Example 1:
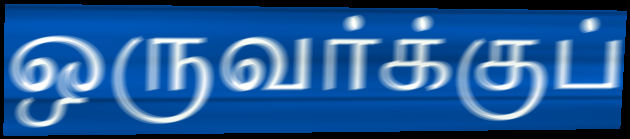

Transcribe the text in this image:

ஒருவர்க்குப்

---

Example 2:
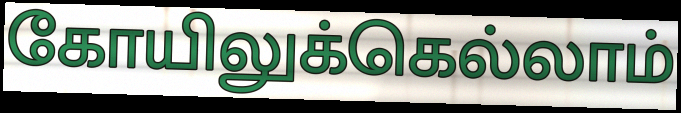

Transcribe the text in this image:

கோயிலுக்கெல்லாம்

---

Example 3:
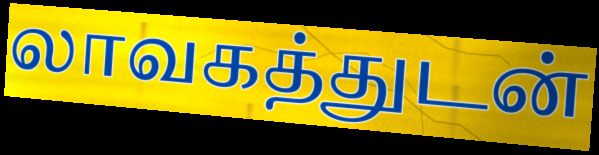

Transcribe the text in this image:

லாவகத்துடன்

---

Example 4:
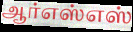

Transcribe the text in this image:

ஆர்எஸ்எஸ்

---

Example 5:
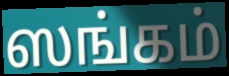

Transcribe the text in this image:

ஸங்கம்